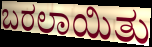
ಬರಲಾಯಿತು